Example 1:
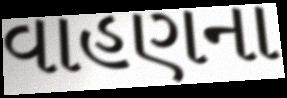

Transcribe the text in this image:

વાહણના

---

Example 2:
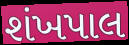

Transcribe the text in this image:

શંખપાલ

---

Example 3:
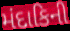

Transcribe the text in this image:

મંદાકિની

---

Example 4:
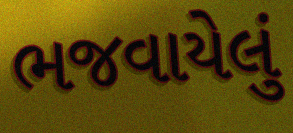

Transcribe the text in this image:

ભજવાયેલું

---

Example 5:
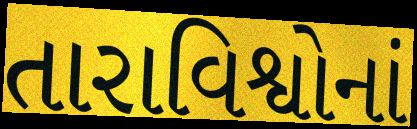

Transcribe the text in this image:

તારાવિશ્વોનાં